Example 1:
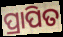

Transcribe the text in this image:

ପ୍ରାପିତ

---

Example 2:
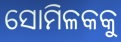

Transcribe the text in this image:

ସୋମିଳକକୁ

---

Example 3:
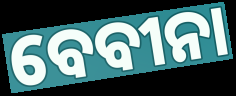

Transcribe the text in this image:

ବେବୀନା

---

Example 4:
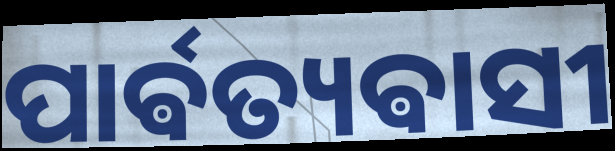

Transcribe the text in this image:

ପାର୍ଵତ୍ୟଵାସୀ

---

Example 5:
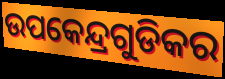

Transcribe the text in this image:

ଉପକେନ୍ଦ୍ରଗୁଡିକର